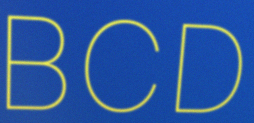
BCD